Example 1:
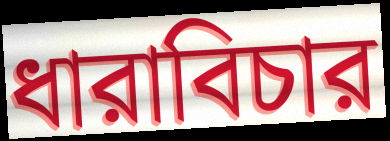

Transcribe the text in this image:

ধারাবিচার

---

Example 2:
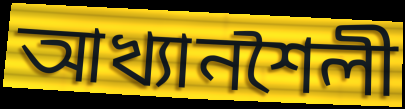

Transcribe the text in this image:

আখ্যানশৈলী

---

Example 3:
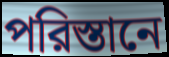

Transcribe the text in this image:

পরিস্তানে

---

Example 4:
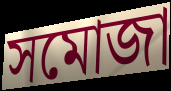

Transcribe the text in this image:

সমোজা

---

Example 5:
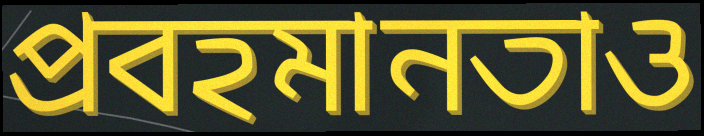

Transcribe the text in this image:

প্রবহমানতাও